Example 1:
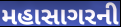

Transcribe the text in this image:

મહાસાગરની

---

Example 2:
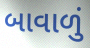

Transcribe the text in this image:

બાવાળું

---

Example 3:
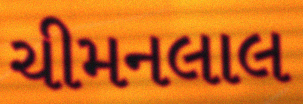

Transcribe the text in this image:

ચીમનલાલ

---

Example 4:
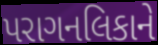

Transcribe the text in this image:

પરાગનલિકાને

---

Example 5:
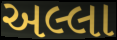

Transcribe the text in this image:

અલ્લા